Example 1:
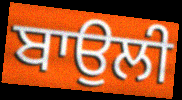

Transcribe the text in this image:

ਬਾਉਲੀ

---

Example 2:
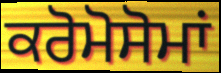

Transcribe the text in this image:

ਕਰੋਮੋਸੋਮਾਂ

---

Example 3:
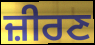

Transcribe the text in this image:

ਜ਼ੀਰਣ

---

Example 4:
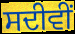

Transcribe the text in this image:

ਸਦੀਵੀਂ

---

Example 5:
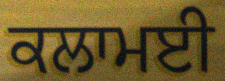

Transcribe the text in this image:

ਕਲਾਮਈ